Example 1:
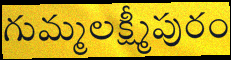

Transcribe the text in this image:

గుమ్మలక్ష్మీపురం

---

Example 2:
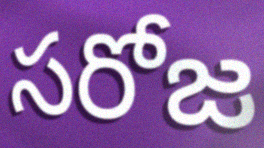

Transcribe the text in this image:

సరోజ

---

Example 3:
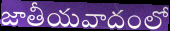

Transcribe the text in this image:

జాతీయవాదంలో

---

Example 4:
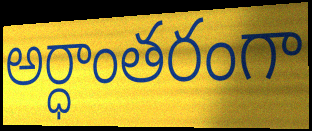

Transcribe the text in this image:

అర్ధాంతరంగా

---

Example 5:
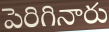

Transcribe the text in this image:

పెరిగినారు